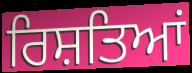
ਰਿਸ਼ਤਿਆਂ